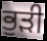
ਭੁੜੀ